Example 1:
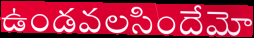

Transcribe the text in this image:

ఉండవలసిందేమో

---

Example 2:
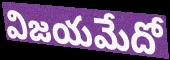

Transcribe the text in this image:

విజయమేదో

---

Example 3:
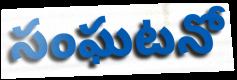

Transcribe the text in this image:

సంఘటనో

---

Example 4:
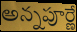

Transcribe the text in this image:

అన్నపూర్ణే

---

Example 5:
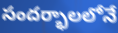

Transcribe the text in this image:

సందర్భాలలోనే